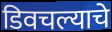
डिवचल्याचे